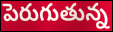
పెరుగుతున్న